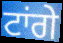
ਟਾਂਗੇ